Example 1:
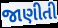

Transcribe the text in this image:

જાણીતી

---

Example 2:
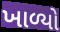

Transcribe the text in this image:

ખાળ્યો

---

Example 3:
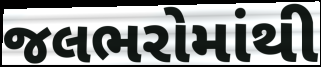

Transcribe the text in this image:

જલભરોમાંથી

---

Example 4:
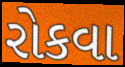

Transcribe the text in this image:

રોકવા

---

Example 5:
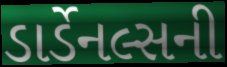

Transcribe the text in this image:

ડાર્ડેનલ્સની